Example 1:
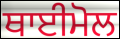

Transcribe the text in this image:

ਥਾਈਮੋਲ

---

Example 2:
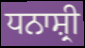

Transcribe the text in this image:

ਧਨਾਸ਼੍ਰੀ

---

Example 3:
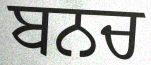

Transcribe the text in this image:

ਬਨਚ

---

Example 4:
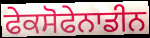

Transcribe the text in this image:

ਫੇਕਸੋਫੇਨਾਡੀਨ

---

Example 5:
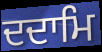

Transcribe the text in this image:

ਦਦਾਮਿ